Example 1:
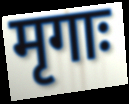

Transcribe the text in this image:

मृगाः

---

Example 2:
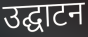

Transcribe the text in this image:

उद्घाटन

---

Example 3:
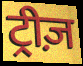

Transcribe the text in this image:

ट्रीज़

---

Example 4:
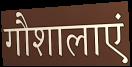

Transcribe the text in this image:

गौशालाएं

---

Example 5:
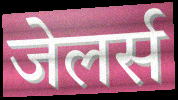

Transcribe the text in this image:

जेलर्स